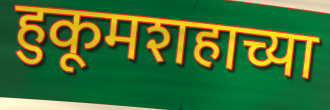
हुकूमशहाच्या